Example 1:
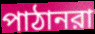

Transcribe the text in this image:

পাঠানরা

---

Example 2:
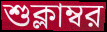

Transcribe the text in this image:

শুক্লাম্বর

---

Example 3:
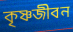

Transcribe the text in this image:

কৃষ্ণজীবন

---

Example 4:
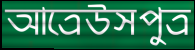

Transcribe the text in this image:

আত্রেউসপুত্র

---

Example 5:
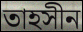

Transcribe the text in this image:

তাহসীন